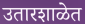
उतारशाळेत